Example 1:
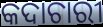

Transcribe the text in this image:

କଦାଚାରୀ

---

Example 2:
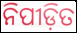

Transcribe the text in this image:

ନିପୀଡ଼ିତ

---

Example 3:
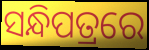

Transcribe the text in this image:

ସନ୍ଧିପତ୍ରରେ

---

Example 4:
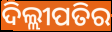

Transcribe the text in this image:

ଦିଲ୍ଲୀପତିର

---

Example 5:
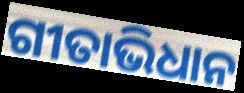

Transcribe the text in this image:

ଗୀତାଭିଧାନ